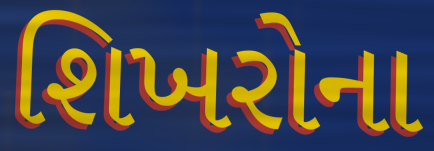
શિખરોના